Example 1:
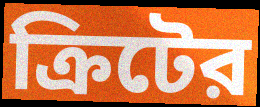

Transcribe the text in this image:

ক্রিটের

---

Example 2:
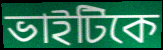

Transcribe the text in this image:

ভাইটিকে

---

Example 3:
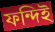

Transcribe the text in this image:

ফন্দিই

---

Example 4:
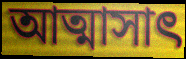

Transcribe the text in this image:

আত্মাসাৎ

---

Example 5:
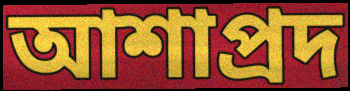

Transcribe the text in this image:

আশাপ্রদ